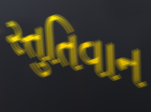
સ્તુતિવાન